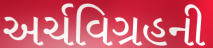
અર્ચવિગ્રહની